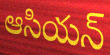
ఆసియన్